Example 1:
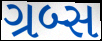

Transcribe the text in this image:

ગ્રબ્સ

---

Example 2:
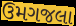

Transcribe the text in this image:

ઉમગજલા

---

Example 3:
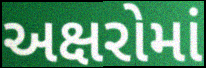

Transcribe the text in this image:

અક્ષરોમાં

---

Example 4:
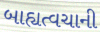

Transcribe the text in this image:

બાહ્યત્વચાની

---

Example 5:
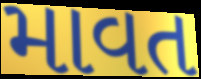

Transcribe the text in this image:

માવત